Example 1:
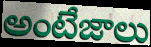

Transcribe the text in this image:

అంటేజాలు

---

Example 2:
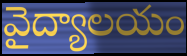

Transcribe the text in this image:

వైద్యాలయం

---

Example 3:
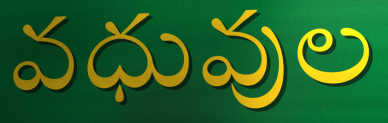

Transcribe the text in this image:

వధువుల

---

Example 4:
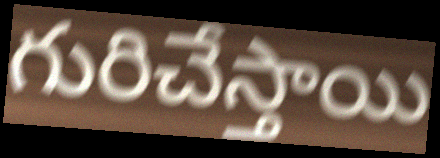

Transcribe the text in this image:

గురిచేస్తాయి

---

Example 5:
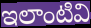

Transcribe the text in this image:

ఇలాంటివి